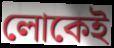
লোকেই